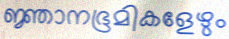
ജ്ഞാനഭൂമികളേഴും